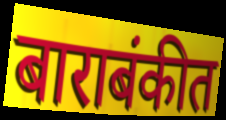
बाराबंकीत